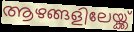
ആഴങ്ങളിലേയ്ക്ക്